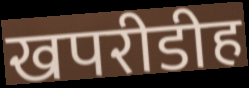
खपरीडीह